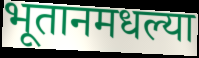
भूतानमधल्या